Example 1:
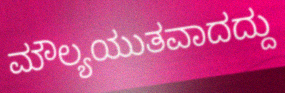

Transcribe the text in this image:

ಮೌಲ್ಯಯುತವಾದದ್ದು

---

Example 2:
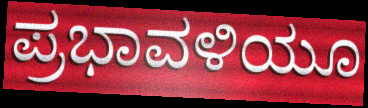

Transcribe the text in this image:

ಪ್ರಭಾವಳಿಯೂ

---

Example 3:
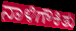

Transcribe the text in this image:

ನಾಳಿಗೌಕಿತು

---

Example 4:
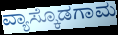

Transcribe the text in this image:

ವ್ಯಾಸ್ಕೊಡಗಾಮ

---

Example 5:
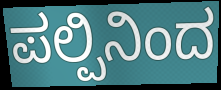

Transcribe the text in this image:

ಪಲ್ಪಿನಿಂದ